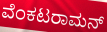
ವೆಂಕಟರಾಮನ್